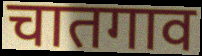
चातगाव